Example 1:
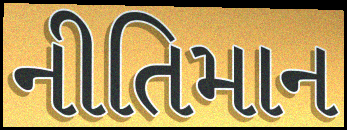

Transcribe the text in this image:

નીતિમાન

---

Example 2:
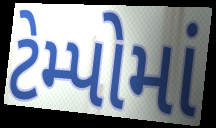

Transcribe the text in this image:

ટેમ્પોમાં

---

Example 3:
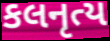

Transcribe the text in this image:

કલનૃત્ય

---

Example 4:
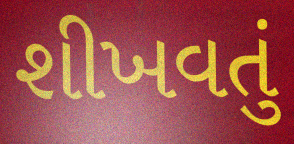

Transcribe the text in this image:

શીખવતું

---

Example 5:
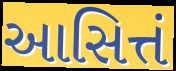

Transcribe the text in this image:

આસિત્તં